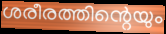
ശരീരത്തിന്റെയും